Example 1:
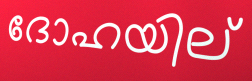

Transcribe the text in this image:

ദോഹയില്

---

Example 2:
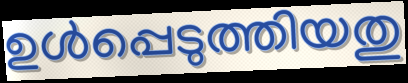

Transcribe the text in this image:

ഉൾപ്പെടുത്തിയതു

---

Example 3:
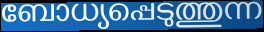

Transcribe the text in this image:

ബോധ്യപ്പെടുത്തുന്ന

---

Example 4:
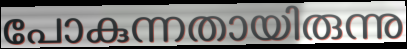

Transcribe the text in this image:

പോകുന്നതായിരുന്നു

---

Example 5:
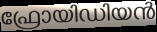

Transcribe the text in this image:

ഫ്രോയിഡിയൻ